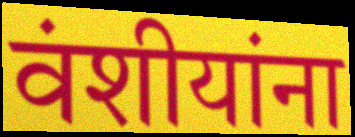
वंशीयांना